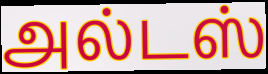
அல்டஸ்